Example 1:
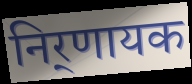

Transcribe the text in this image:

निर्णायक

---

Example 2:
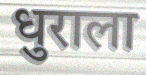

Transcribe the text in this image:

धुराला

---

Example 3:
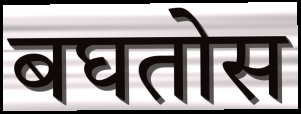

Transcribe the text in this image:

बघतोस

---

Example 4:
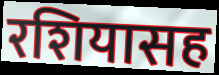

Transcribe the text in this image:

रशियासह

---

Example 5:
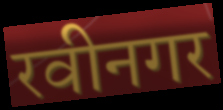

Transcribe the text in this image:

रवीनगर